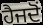
ਹੈਜਦੋਂ